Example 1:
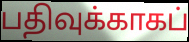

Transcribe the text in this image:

பதிவுக்காகப்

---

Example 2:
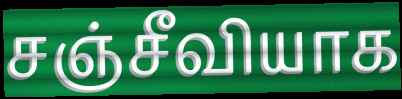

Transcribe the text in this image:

சஞ்சீவியாக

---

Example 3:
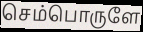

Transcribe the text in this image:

செம்பொருளே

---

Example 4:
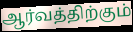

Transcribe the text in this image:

ஆர்வத்திற்கும்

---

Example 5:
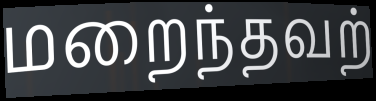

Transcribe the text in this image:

மறைந்தவற்